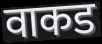
वाकड